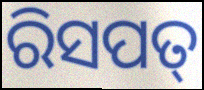
ରିସପତ୍